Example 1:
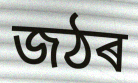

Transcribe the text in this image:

জঠৰ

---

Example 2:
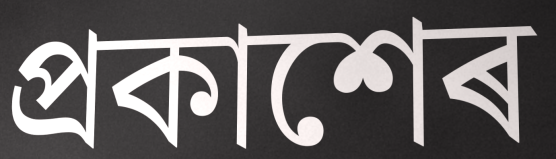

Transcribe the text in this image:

প্ৰকাশেৰ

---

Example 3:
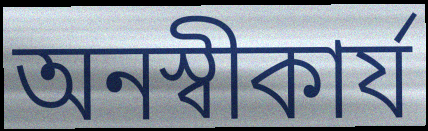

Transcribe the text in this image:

অনস্বীকাৰ্য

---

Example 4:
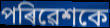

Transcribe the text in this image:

পৰিৱেশকে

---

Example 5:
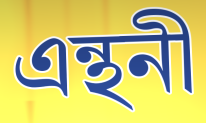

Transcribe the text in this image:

এন্থনী